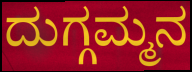
ದುಗ್ಗಮ್ಮನ